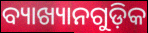
ବ୍ୟାଖ୍ୟାନଗୁଡ଼ିକ